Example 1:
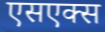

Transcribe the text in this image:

एसएक्स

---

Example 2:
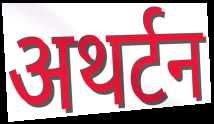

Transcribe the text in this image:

अथर्टन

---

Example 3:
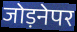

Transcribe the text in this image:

जोड़नेपर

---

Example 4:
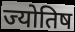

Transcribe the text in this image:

ज्योतिष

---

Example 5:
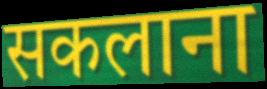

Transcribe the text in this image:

सकलाना